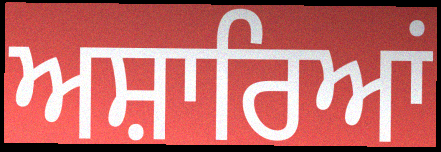
ਅਸ਼ਾਰਿਆਂ